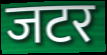
जटर